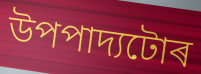
উপপাদ্যটোৰ